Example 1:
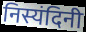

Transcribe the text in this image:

निस्यंदिनी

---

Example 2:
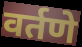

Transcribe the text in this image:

वर्तणे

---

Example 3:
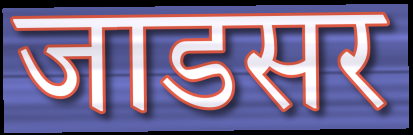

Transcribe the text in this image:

जाडसर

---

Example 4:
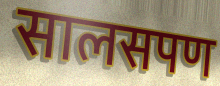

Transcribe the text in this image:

सालसपण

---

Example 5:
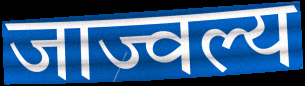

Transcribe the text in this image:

जाज्वल्य